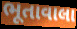
ભૂતાવાલા